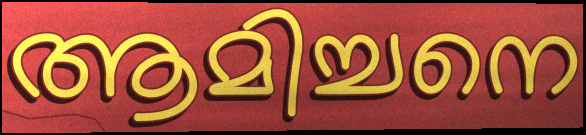
ആമിച്ചനെ